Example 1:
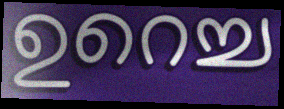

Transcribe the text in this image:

ഉറെച്ച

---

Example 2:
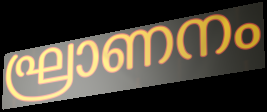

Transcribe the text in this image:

ഘ്രാണനം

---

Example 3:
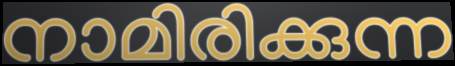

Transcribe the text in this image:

നാമിരിക്കുന്ന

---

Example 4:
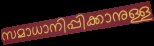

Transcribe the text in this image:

സമാധാനിപ്പിക്കാനുള്ള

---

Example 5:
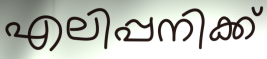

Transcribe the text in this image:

എലിപ്പനിക്ക്